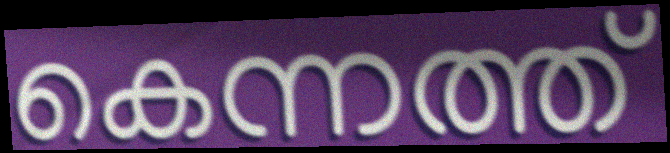
കെന്നത്ത്